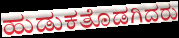
ಹುಡುಕತೊಡಗಿದರು